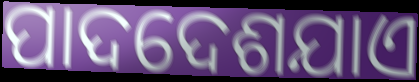
ପାଦଦେଶଯାଏ